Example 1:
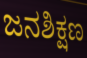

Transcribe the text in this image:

ಜನಶಿಕ್ಷಣ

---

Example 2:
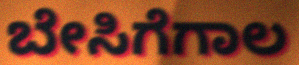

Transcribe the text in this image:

ಬೇಸಿಗೆಗಾಲ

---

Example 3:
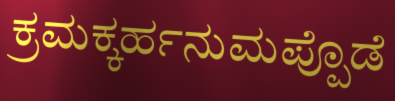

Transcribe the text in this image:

ಕ್ರಮಕ್ಕರ್ಹನುಮಪ್ಪೊಡೆ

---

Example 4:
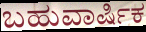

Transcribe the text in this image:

ಬಹುವಾರ್ಷಿಕ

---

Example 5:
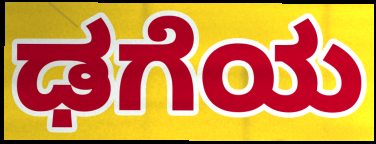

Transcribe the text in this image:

ಢಗೆಯ